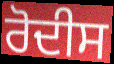
ਰੋਦੀਸ